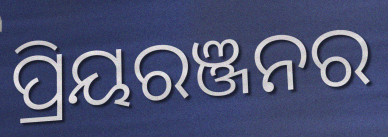
ପ୍ରିୟରଞ୍ଜନର